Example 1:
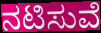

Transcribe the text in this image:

ನಟಿಸುವೆ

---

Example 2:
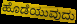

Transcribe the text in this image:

ಹೊಡೆಯುವುದು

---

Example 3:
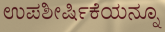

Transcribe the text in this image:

ಉಪಶೀರ್ಷಿಕೆಯನ್ನೂ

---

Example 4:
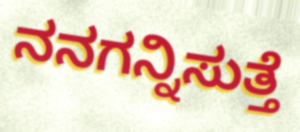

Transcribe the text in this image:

ನನಗನ್ನಿಸುತ್ತೆ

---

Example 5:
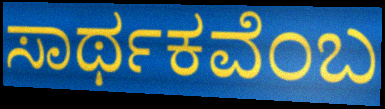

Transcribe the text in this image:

ಸಾರ್ಥಕವೆಂಬ